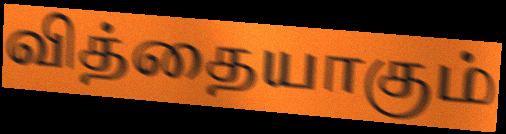
வித்தையாகும்